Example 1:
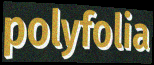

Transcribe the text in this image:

polyfolia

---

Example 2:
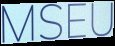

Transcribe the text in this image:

MSEU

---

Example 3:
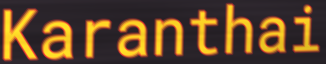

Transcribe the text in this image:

Karanthai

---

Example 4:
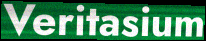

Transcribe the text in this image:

Veritasium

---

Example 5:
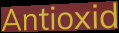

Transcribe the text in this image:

Antioxid